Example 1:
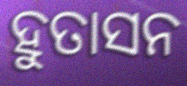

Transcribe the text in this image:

ହୁତାସନ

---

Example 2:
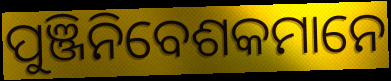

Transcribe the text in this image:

ପୁଞ୍ଜିନିବେଶକମାନେ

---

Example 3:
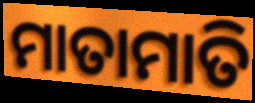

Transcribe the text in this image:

ମାତାମାତି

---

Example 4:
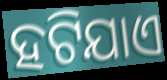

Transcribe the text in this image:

ହଟିଯାଏ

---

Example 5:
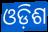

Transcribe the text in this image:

ଓଡ଼ିଶ